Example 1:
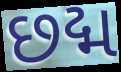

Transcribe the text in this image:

છદ્મ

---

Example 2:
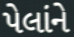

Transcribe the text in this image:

પેલાંને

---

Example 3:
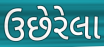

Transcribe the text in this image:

ઉછેરેલા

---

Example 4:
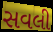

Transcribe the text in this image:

સવલી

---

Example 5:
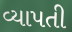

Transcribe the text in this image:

વ્યાપતી